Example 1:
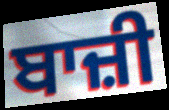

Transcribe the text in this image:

ਬਾਜ਼ੀ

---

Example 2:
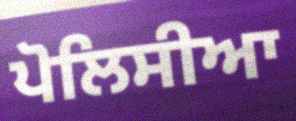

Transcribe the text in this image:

ਪੋਲਿਸੀਆ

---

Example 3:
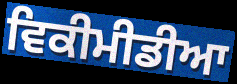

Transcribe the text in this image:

ਵਿਕੀਮੀਡੀਆ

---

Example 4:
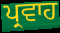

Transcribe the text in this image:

ਪ੍ਰਵਾਹ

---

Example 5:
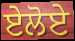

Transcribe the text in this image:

ਏਲੋਏ